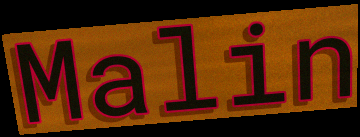
Malin